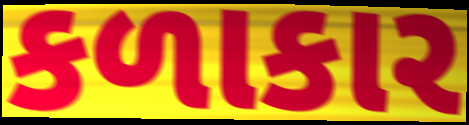
કળાકાર